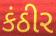
કંઠીર